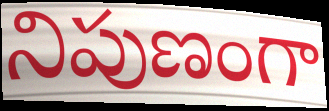
నిపుణంగా